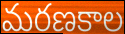
మరణకాల